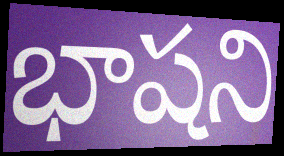
భాషని